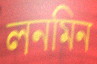
লনমিন